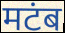
मटंब